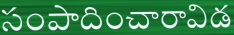
సంపాదించారావిడ